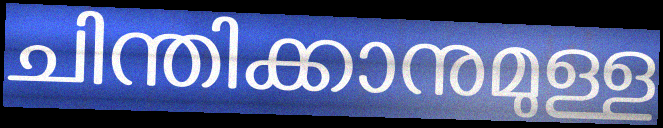
ചിന്തിക്കാനുമുള്ള